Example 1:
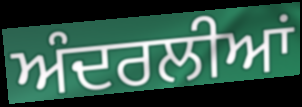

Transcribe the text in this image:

ਅੰਦਰਲੀਆਂ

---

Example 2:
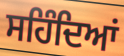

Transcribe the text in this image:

ਸਹਿੰਦਿਆਂ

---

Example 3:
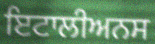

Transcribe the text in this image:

ਇਟਾਲੀਅਨਸ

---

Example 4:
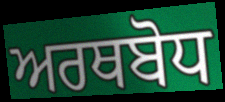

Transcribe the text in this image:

ਅਰਥਬੋਧ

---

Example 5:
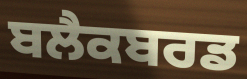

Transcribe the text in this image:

ਬਲੈਕਬਰਡ